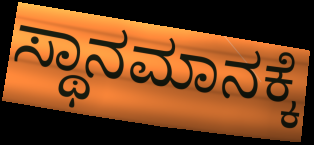
ಸ್ಥಾನಮಾನಕ್ಕೆ